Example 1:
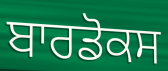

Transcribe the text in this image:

ਬਾਰਡੋਕਸ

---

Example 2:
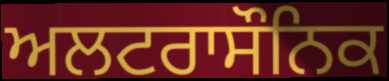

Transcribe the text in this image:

ਅਲਟਰਾਸੌਨਿਕ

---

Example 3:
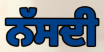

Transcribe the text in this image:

ਨੱਸਦੀ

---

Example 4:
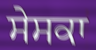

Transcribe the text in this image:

ਸੇਸਕਾ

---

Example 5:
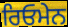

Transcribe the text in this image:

ਰਿਓਮੇਨ